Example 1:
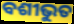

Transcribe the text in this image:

ବଶୀଭୁତ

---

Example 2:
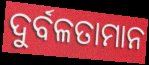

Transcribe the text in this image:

ଦୁର୍ବଳତାମାନ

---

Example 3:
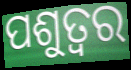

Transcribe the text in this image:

ପଶୁତ୍ୱର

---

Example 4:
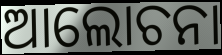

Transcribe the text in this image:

ଆଲୋଚନା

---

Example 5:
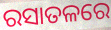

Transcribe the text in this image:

ରସାତଳରେ